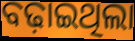
ବଢ଼ାଇଥିଲା